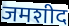
जमशीद